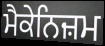
ਮੈਕੇਨਿਜ਼ਮ